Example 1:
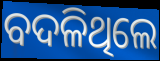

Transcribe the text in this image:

ବଦଳିଥିଲେ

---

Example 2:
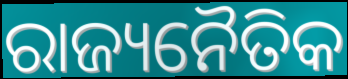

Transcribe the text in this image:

ରାଜ୍ୟନୈତିକ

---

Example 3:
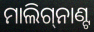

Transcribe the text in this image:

ମାଲିଗ୍‌ନାଣ୍ଟ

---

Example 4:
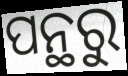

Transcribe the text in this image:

ପନ୍ଥରୁ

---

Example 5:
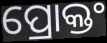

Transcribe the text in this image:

ପ୍ରୋକ୍ତଂ